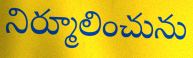
నిర్మూలించును